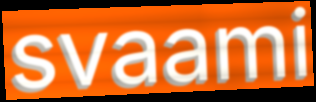
svaami